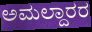
ಅಮಲ್ದಾರರ